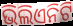
ଭିଲିଏନିଟି